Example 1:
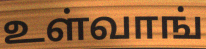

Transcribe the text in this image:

உள்வாங்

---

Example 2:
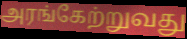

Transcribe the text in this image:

அரங்கேற்றுவது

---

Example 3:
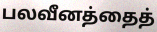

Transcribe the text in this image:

பலவீனத்தைத்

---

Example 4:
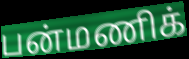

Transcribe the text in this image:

பன்மணிக்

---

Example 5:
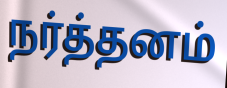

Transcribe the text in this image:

நர்த்தனம்